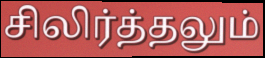
சிலிர்த்தலும்